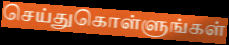
செய்துகொள்ளுங்கள்